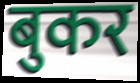
बुकर